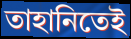
তাহানিতেই